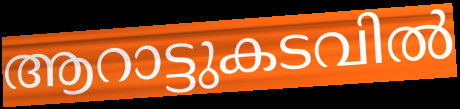
ആറാട്ടുകടവിൽ